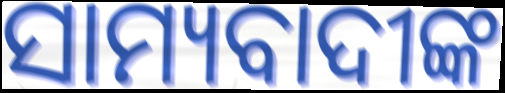
ସାମ୍ୟବାଦୀଙ୍କ